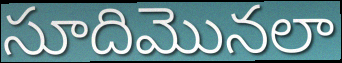
సూదిమొనలా